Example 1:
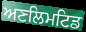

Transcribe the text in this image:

ਅਣਲਿਮਟਿਡ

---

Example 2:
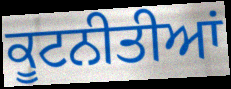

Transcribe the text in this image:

ਕੂਟਨੀਤੀਆਂ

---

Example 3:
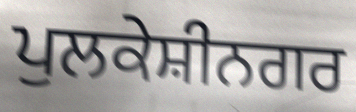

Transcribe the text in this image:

ਪੁਲਕੇਸ਼ੀਨਗਰ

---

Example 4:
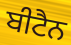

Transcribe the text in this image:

ਬੀਟੈਨ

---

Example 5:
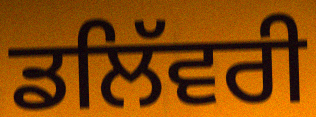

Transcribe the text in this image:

ਡਲਿੱਵਰੀ